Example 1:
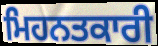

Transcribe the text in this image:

ਮਿਹਨਤਕਾਰੀ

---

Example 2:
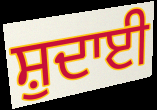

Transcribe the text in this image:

ਸ਼ੁਦਾਈ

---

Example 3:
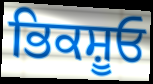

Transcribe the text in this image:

ਭਿਕਸ਼ੂਓ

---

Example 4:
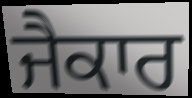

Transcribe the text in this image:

ਜੈਕਾਰ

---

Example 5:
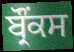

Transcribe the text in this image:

ਬ੍ਰੌਂਕਸ